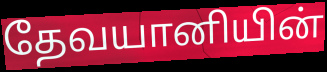
தேவயானியின்